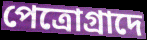
পেত্রোগ্রাদে